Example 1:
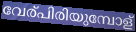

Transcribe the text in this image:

വേര്പിരിയുമ്പോള്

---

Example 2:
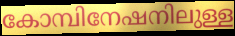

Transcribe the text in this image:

കോമ്പിനേഷനിലുള്ള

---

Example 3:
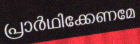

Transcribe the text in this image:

പ്രാർഥിക്കേണമേ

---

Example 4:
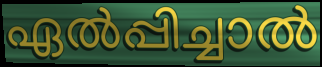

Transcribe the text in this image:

ഏൽപ്പിച്ചാൽ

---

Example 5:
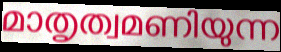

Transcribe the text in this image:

മാതൃത്വമണിയുന്ന